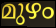
മുഴം